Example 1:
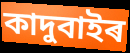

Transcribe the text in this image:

কাদুবাইৰ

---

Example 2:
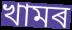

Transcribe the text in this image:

খামৰ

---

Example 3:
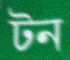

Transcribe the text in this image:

টন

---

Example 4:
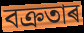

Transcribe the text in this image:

বক্ৰতাৰ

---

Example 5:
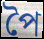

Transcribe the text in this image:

পৈ